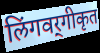
लिंगवर्गीकृत